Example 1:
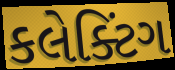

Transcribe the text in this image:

કલેક્ટિંગ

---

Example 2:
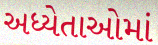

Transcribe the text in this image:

અધ્યેતાઓમાં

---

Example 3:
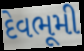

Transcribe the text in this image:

દેવભૂમી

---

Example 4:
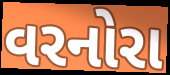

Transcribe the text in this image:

વરનોરા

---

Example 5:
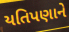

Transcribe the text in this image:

યતિપણાને